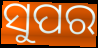
ସୁପର